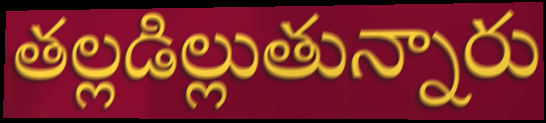
తల్లడిల్లుతున్నారు